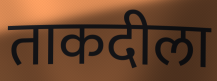
ताकदीला